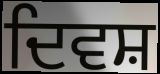
ਦਿਵਸ਼